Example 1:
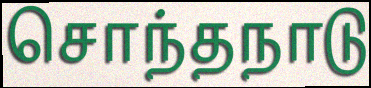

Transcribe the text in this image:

சொந்தநாடு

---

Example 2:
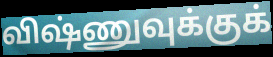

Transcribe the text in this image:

விஷ்ணுவுக்குக்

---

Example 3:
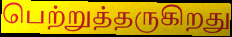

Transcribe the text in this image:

பெற்றுத்தருகிறது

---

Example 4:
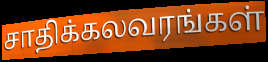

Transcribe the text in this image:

சாதிக்கலவரங்கள்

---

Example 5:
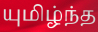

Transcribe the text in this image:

யுமிழ்ந்த